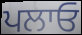
ਪਲਾਓ